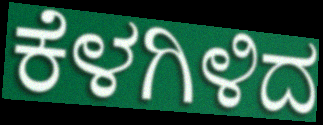
ಕೆಳಗಿಳಿದ